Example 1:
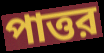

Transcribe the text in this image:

পাত্তর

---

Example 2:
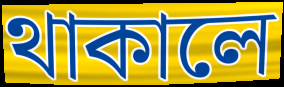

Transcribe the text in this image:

থাকালে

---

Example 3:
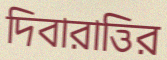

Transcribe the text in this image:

দিবারাত্তির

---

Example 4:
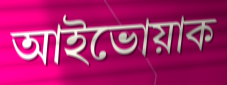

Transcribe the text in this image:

আইভোয়াক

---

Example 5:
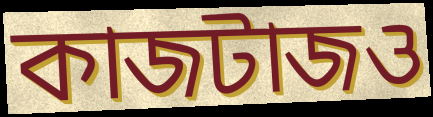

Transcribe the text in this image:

কাজটাজও